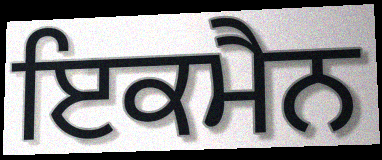
ਇਕਮੈਨ